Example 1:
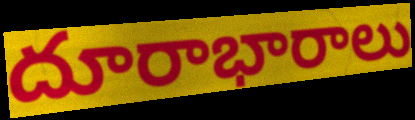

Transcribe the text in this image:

దూరాభారాలు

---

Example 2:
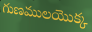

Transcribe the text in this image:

గుణములయొక్క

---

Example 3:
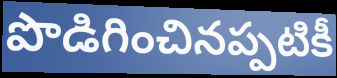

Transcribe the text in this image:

పొడిగించినప్పటికీ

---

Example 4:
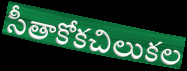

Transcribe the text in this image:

సీతాకోకచిలుకల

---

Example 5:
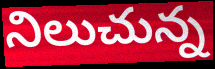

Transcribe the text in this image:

నిలుచున్న